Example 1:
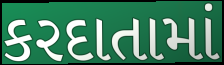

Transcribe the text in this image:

કરદાતામાં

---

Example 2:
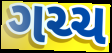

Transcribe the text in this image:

ગચ્ચ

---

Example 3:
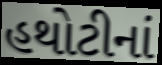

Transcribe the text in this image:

હથોટીનાં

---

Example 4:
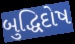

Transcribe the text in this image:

બુદ્ધિદોષ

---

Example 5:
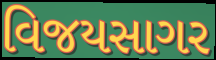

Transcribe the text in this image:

વિજયસાગર